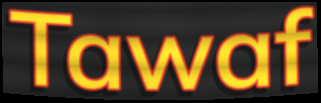
Tawaf